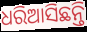
ଧରିଆସିଛନ୍ତି